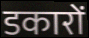
डकारों